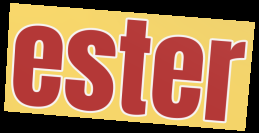
ester